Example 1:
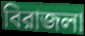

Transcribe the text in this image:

বিরাজলা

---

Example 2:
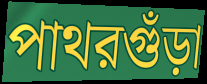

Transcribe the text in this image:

পাথরগুঁড়া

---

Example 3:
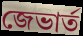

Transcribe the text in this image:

জেভার্ত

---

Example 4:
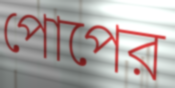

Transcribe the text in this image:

পোপের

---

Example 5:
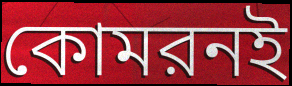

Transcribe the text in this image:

কোমরনই